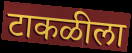
टाकळीला